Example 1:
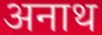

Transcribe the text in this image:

अनाथ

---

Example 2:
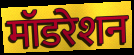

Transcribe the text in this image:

मॉडरेशन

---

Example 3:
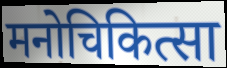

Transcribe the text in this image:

मनोचिकित्सा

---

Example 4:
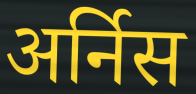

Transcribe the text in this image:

अर्निस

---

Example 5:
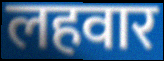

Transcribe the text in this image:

लहवार